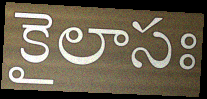
కైలాసః